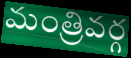
మంత్రివర్గ